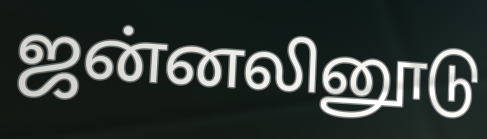
ஜன்னலினூடு